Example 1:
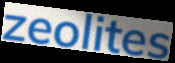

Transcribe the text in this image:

zeolites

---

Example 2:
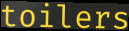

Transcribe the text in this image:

toilers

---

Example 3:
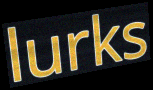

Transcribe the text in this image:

lurks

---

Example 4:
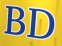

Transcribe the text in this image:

BD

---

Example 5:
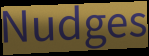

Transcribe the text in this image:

Nudges